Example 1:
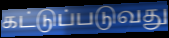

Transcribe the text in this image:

கட்டுப்படுவது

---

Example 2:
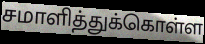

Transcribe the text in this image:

சமாளித்துக்கொள்ள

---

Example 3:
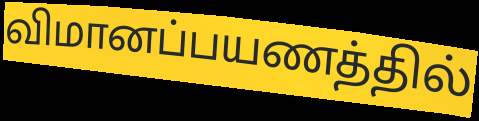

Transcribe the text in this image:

விமானப்பயணத்தில்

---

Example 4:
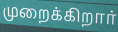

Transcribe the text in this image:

முறைக்கிறார்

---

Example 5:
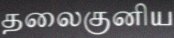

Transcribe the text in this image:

தலைகுனிய